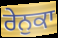
ਰੇਨੁਕਾ